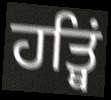
ਹਤ੍ਥਿਂ